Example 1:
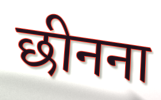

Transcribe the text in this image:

छीनना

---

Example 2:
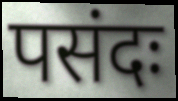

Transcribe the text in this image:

पसंदः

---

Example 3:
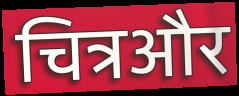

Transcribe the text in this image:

चित्रऔर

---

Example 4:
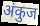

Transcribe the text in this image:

अंकुज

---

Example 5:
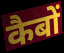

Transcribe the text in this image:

कैबों